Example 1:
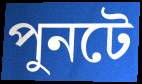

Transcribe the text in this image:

পুনটে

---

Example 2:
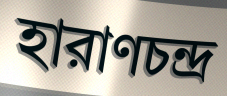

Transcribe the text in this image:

হারাণচন্দ্র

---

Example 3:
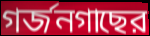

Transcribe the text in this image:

গর্জনগাছের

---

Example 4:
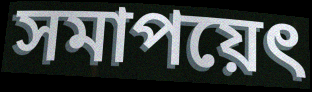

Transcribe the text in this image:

সমাপয়েৎ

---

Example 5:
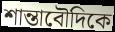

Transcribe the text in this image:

শান্তাবৌদিকে